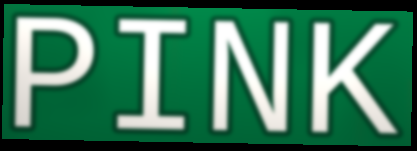
PINK